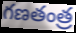
గణతంత్ర